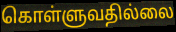
கொள்ளுவதில்லை